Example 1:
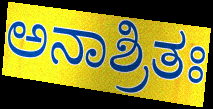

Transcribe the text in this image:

ಅನಾಶ್ರಿತಃ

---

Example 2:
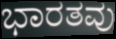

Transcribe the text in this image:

ಭಾರತವು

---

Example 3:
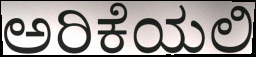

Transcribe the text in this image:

ಅರಿಕೆಯಲಿ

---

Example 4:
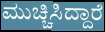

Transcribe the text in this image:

ಮುಚ್ಚಿಸಿದ್ದಾರೆ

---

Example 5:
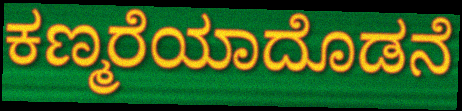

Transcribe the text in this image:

ಕಣ್ಮರೆಯಾದೊಡನೆ